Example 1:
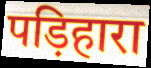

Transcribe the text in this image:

पड़िहारा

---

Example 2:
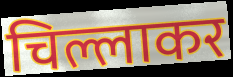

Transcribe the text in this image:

चिल्लाकर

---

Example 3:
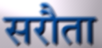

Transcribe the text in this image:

सरौता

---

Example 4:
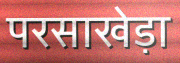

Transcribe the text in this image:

परसाखेड़ा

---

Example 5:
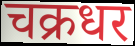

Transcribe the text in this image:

चक्रधर